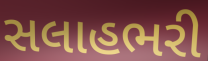
સલાહભરી